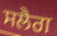
ਸਲੈਗ